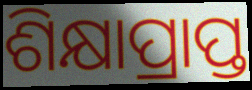
ଶିକ୍ଷାପ୍ରାପ୍ତ